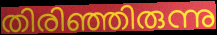
തിരിഞ്ഞിരുന്നു